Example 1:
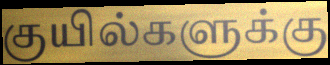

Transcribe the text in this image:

குயில்களுக்கு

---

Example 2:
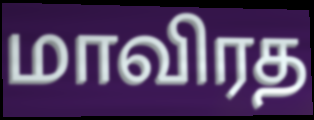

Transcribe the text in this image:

மாவிரத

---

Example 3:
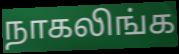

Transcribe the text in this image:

நாகலிங்க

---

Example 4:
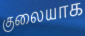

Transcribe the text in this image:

குலையாக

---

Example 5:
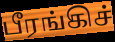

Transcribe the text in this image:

பீரங்கிச்